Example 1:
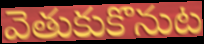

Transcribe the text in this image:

వెతుకుకొనుట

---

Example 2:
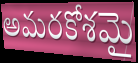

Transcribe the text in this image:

అమరకోశమై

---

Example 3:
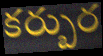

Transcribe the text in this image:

కర్బుర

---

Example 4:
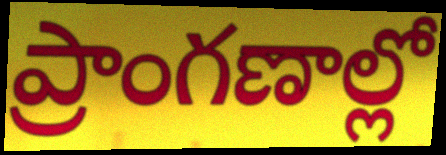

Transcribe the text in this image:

ప్రాంగణాల్లో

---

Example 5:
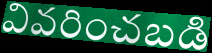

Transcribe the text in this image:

వివరించబడి